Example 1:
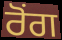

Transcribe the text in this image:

ਰੋਂਗ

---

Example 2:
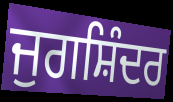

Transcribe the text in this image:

ਜੁਗਸ਼ਿੰਦਰ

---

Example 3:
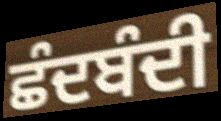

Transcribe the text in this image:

ਛੰਦਬੰਦੀ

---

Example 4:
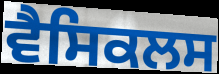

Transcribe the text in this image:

ਵੈਸਿਕਲਸ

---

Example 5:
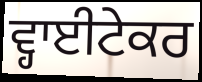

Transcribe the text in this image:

ਵ੍ਹਾਈਟੇਕਰ